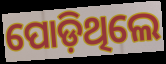
ପୋଡ଼ିଥିଲେ